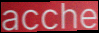
acche